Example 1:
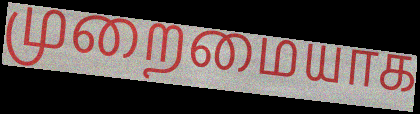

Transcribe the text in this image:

முறைமையாக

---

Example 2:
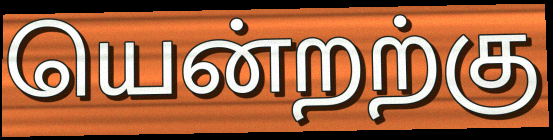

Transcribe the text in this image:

யென்றற்கு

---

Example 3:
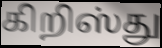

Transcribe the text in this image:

கிறிஸ்து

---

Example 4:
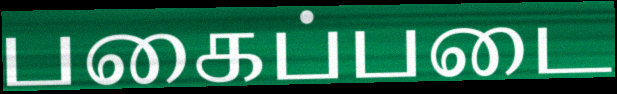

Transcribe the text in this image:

பகைப்படை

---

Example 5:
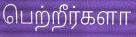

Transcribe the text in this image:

பெற்றீர்களா